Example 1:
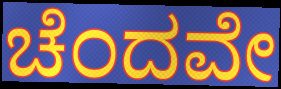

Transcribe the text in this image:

ಚೆಂದವೇ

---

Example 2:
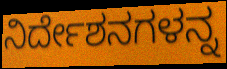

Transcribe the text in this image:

ನಿರ್ದೇಶನಗಳನ್ನ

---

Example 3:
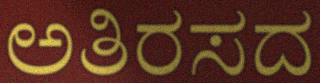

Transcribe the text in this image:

ಅತಿರಸದ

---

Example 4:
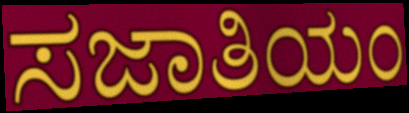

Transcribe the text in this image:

ಸಜಾತಿಯಂ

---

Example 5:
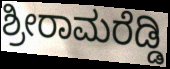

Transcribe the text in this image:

ಶ್ರೀರಾಮರೆಡ್ಡಿ